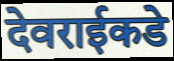
देवराईकडे